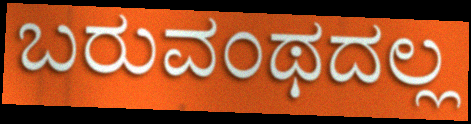
ಬರುವಂಥದಲ್ಲ